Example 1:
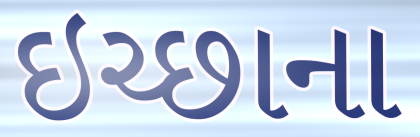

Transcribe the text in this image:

ઇચ્છાના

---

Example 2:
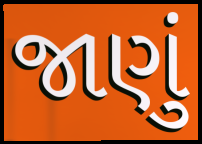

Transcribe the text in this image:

જાણું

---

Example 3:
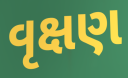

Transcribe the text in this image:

વૃક્ષણ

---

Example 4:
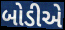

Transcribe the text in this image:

બોડીએ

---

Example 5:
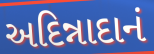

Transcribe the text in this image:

અદિન્નાદાનં